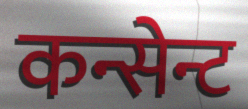
कन्सेन्ट